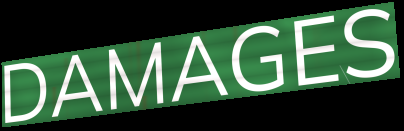
DAMAGES